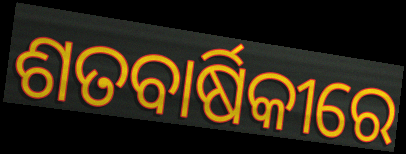
ଶତବାର୍ଷିକୀରେ